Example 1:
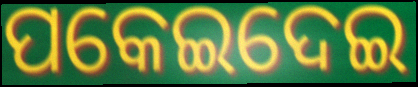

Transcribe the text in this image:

ପକେଇଦେଇ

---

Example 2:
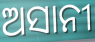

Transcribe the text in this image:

ଅସାନୀ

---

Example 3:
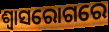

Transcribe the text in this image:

ଶ୍ଵାସରୋଗରେ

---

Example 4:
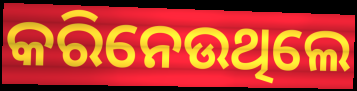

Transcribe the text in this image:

କରିନେଉଥିଲେ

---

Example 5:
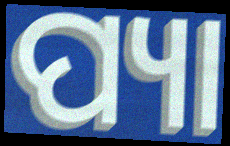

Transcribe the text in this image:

ପ୍ୟା